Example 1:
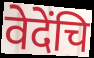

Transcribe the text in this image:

वेदेंचि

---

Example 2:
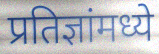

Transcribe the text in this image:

प्रतिज्ञांमध्ये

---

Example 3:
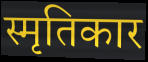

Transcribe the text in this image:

स्मृतिकार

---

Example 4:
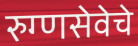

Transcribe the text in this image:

रुग्णसेवेचे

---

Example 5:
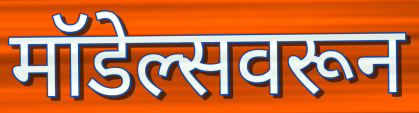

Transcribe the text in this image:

मॉडेल्सवरून